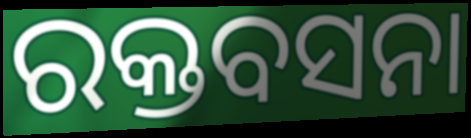
ରକ୍ତବସନା